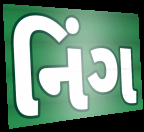
નિંગ